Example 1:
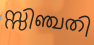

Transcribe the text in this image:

സ്സിഞ്ചതി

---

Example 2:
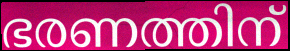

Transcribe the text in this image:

ഭരണത്തിന്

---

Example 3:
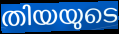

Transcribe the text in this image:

തിയയുടെ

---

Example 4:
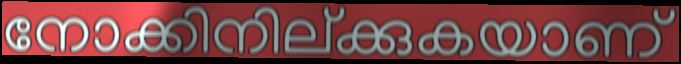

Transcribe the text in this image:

നോക്കിനില്ക്കുകയാണ്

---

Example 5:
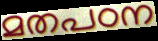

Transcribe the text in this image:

മതപഠന